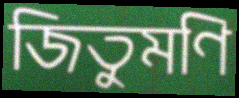
জিতুমণি